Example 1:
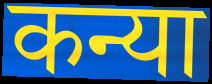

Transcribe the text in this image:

कन्या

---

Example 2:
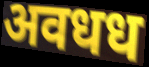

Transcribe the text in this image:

अवधध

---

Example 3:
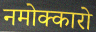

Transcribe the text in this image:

नमोक्कारो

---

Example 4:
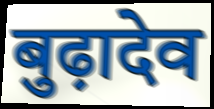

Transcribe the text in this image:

बुढ़ादेव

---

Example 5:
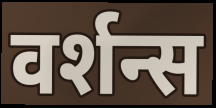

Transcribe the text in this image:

वर्शन्स